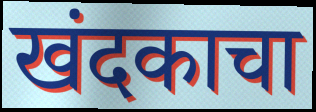
खंदकाचा